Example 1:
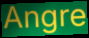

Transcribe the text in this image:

Angre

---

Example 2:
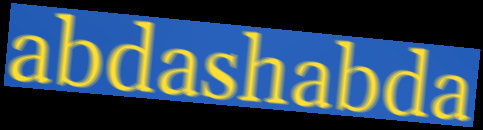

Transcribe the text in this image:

abdashabda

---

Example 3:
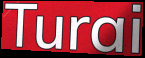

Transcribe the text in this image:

Turai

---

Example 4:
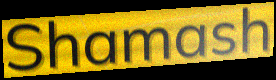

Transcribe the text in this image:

Shamash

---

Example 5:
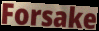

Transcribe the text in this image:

Forsake